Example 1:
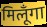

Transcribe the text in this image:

मिलूँगा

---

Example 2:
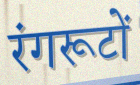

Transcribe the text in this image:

रंगरूटों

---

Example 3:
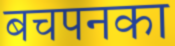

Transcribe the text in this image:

बचपनका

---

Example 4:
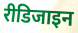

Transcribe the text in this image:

रीडिजाइन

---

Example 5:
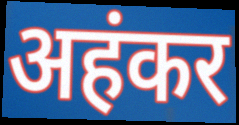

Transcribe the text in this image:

अहंकर